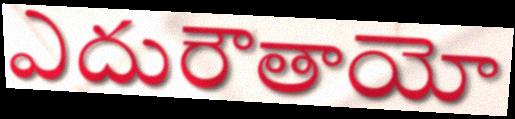
ఎదురౌతాయో